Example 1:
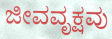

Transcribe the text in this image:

ಜೀವವೃಕ್ಷವು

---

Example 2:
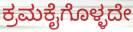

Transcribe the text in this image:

ಕ್ರಮಕೈಗೊಳ್ಳದೇ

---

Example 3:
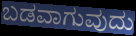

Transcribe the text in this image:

ಬಡವಾಗುವುದು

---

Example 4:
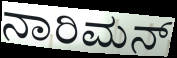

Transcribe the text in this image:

ನಾರಿಮನ್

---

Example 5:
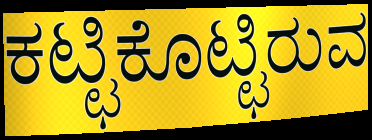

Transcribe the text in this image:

ಕಟ್ಟಿಕೊಟ್ಟಿರುವ